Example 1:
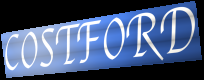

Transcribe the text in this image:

COSTFORD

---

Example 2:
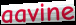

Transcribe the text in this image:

aavine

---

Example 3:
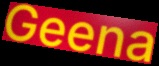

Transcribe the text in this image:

Geena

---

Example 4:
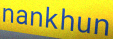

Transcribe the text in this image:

nankhun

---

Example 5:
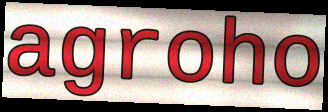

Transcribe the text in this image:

agroho